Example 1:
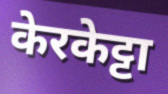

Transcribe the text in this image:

केरकेट्टा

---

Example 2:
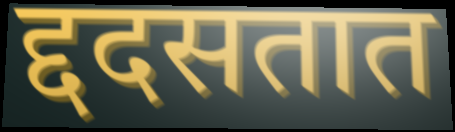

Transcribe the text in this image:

द्ददसतात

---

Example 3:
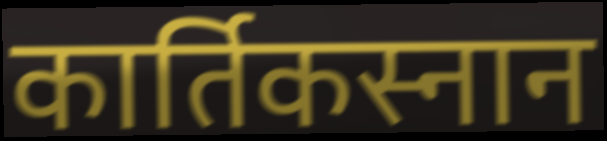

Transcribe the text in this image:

कार्तिकस्नान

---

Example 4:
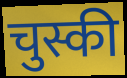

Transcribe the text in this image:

चुस्की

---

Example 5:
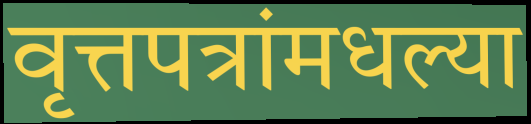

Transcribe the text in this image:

वृत्तपत्रांमधल्या